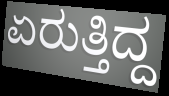
ಏರುತ್ತಿದ್ದ